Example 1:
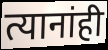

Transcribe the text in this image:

त्यानांही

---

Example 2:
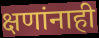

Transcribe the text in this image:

क्षणांनाही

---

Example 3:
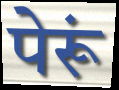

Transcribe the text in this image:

पेरूं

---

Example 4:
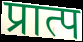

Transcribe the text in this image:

प्रात्प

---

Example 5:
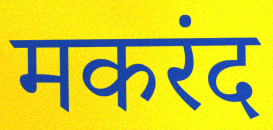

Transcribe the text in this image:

मकरंद